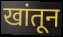
खांतून